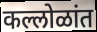
कल्लोळांत